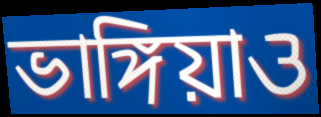
ভাঙ্গিয়াও